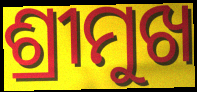
ଶ୍ରୀମୁଖ